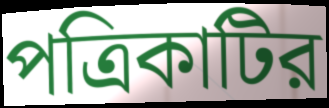
পত্রিকাটির